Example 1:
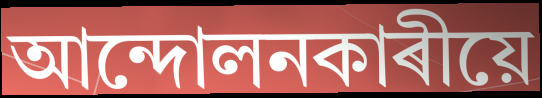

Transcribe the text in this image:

আন্দোলনকাৰীয়ে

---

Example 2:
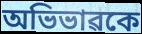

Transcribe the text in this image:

অভিভাৱকে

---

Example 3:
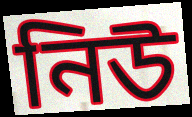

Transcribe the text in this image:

নিউ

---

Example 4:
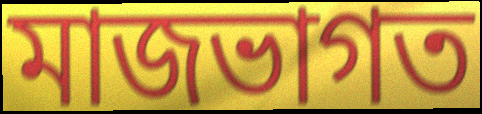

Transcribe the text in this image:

মাজভাগত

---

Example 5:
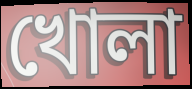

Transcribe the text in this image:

খোলা